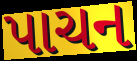
પાચન